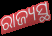
ରାଜ୍ୟସ୍ଥ